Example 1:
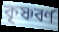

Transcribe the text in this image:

কৃষ্ণবর্ণ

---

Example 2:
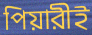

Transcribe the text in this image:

পিয়ারীই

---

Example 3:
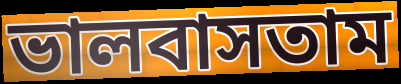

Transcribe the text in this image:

ভালবাসতাম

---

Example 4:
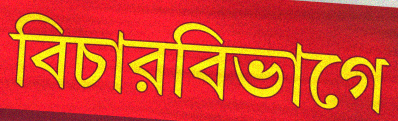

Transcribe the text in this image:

বিচারবিভাগে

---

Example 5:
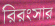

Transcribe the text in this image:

রিরংসার